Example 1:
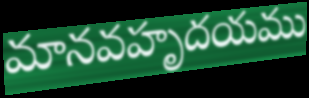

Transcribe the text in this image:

మానవహృదయము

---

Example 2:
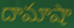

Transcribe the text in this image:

దామాషా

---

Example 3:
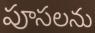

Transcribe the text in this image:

పూసలను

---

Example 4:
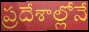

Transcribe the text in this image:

ప్రదేశాల్లోనే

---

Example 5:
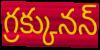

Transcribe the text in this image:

గ్రక్కునన్